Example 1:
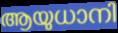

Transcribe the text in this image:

ആയുധാനി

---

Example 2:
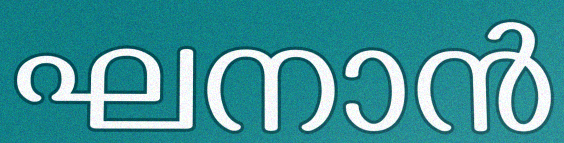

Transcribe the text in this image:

ഘനാൻ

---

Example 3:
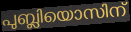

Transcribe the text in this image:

പുബ്ലിയൊസിന്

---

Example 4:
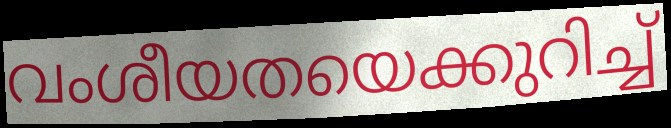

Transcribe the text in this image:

വംശീയതയെക്കുറിച്ച്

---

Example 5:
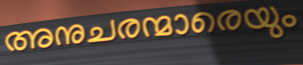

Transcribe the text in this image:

അനുചരന്മാരെയും